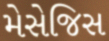
મેસેજિસ